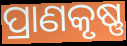
ପ୍ରାଣକୃଷ୍ଣ